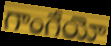
గాంగేయో